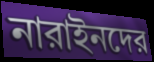
নারাইনদের